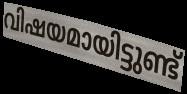
വിഷയമായിട്ടുണ്ട്